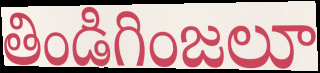
తిండిగింజలూ